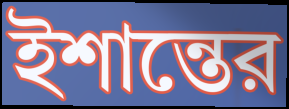
ইশান্তের